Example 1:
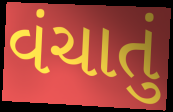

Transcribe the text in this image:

વંચાતું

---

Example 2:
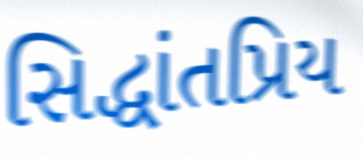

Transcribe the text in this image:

સિદ્ધાંતપ્રિય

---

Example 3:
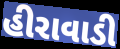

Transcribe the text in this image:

હીરાવાડી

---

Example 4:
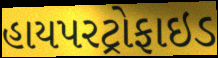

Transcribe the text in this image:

હાયપરટ્રોફાઇડ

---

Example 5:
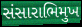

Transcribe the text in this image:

સંસારાભિમુખ